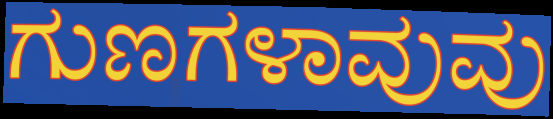
ಗುಣಗಳಾವುವು